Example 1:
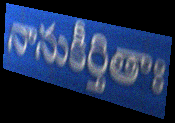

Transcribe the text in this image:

నానుకీర్తితాః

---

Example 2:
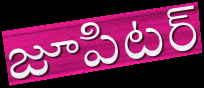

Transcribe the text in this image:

జూపిటర్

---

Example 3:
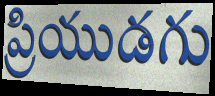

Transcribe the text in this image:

ప్రియుడగు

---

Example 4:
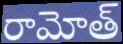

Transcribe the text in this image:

రామోత్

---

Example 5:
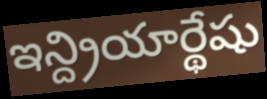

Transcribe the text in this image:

ఇన్ద్రియార్థేషు